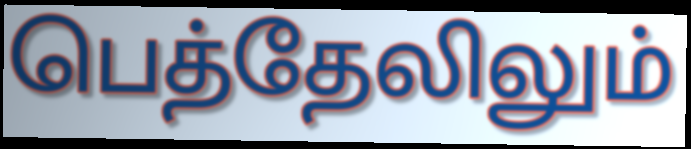
பெத்தேலிலும்